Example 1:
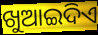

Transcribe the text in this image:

ଖୁଆଇଦିଏ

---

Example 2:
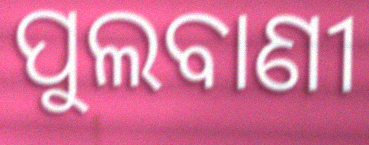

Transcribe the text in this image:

ପୁଲବାଣୀ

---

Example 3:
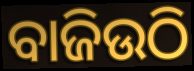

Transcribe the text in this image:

ବାଜିଉଠି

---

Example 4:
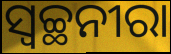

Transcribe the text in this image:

ସ୍ୱଚ୍ଛନୀରା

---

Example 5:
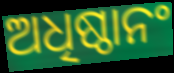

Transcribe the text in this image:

ଅଧିଷ୍ଠାନଂ